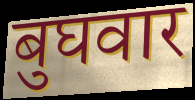
बुघवार